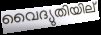
വൈദ്യുതിയില്